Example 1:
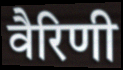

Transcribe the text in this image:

वैरिणी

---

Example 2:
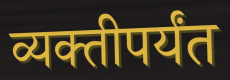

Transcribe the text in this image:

व्यक्तीपर्यंत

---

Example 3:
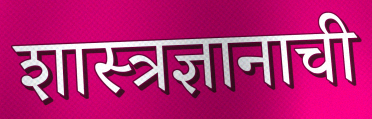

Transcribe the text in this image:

शास्त्रज्ञानाची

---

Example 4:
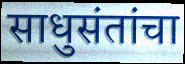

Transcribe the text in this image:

साधुसंतांचा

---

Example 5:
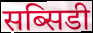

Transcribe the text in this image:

सब्सिडी